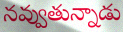
నవ్వుతున్నాడు